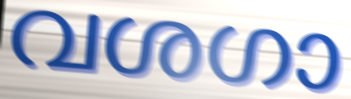
വശഗാ